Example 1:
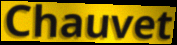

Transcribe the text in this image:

Chauvet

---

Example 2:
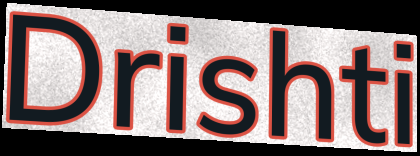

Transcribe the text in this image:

Drishti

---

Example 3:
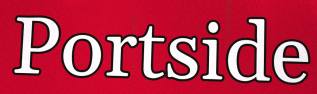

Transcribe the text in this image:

Portside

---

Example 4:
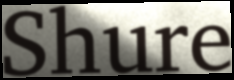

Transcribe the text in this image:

Shure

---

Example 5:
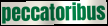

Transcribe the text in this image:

peccatoribus